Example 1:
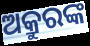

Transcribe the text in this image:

ଅକ୍ରୁରଙ୍କ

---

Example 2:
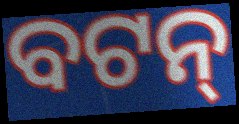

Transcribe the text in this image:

ବଟନ୍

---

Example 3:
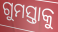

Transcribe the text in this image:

ଗୁମସ୍ତାକୁ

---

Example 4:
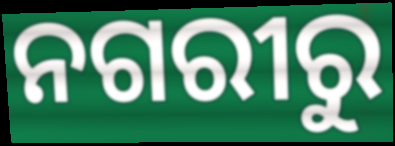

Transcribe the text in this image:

ନଗରୀରୁ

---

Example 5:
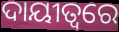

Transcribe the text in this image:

ଦାୟୀତ୍ଵରେ